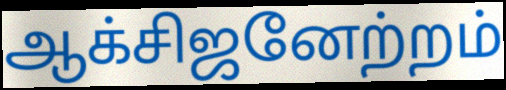
ஆக்சிஜனேற்றம்